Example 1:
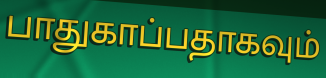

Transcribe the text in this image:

பாதுகாப்பதாகவும்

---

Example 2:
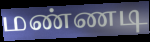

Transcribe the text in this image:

மண்ணடி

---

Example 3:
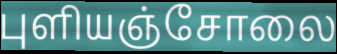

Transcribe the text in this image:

புளியஞ்சோலை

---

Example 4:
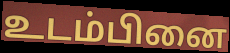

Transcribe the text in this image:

உடம்பினை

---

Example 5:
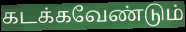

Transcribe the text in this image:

கடக்கவேண்டும்